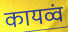
कायव्वं